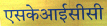
एसकेआईसीसी